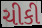
ચીકી